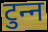
टुन्न